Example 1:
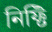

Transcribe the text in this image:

নিফ্টি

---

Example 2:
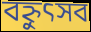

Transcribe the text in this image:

বহ্নুৎসব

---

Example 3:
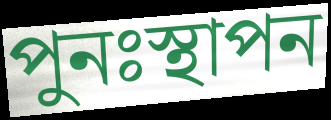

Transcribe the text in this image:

পুনঃস্থাপন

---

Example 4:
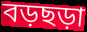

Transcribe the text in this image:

বড়ছড়া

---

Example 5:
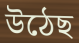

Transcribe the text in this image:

উঠেছ